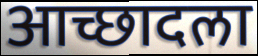
आच्छादला